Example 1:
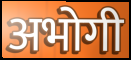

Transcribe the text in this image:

अभोगी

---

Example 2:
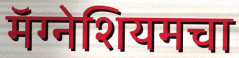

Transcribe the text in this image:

मॅग्नेशियमचा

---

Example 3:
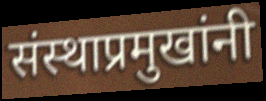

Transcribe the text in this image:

संस्थाप्रमुखांनी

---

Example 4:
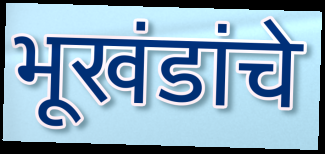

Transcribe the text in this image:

भूखंडांचे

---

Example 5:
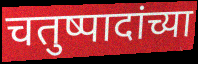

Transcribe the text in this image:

चतुष्पादांच्या